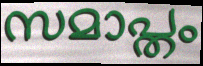
സമാപ്തം